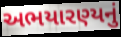
અભયારણ્યનું